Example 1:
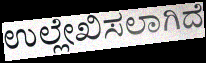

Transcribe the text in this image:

ಉಲ್ಲೇಖಿಸಲಾಗಿದೆ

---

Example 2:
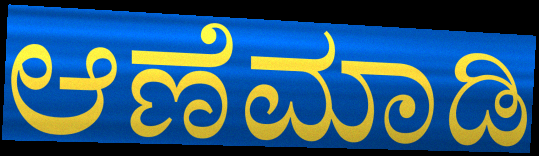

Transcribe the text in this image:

ಆಣೆಮಾಡಿ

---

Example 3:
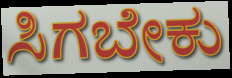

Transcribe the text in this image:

ಸಿಗಬೇಕು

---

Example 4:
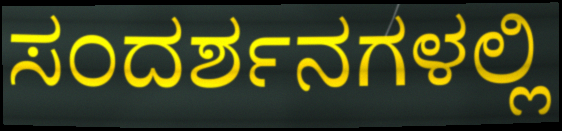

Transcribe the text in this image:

ಸಂದರ್ಶನಗಳಲ್ಲಿ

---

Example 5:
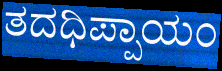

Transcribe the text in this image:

ತದಧಿಪ್ಪಾಯಂ